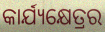
କାର୍ଯ୍ୟକ୍ଷେତ୍ରର